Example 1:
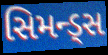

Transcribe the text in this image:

સિમન્ડ્સ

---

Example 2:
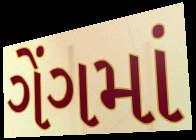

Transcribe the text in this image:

ગેંગમાં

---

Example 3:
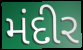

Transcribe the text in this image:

મંદીર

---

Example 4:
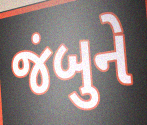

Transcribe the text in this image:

જંબુને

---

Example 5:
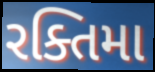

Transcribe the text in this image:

રક્તિમા